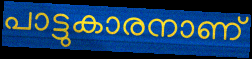
പാട്ടുകാരനാണ്